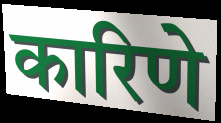
कारिणे